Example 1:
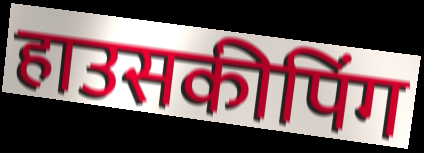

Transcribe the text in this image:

हाउसकीपिंग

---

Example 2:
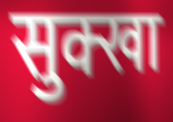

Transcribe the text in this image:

सुक्खा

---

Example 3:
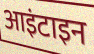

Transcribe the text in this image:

आइंटाइन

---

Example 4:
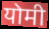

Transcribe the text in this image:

योमी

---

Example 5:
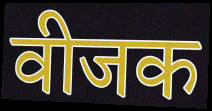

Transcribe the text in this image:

वीजक